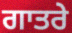
ਗਾਤਰੇ